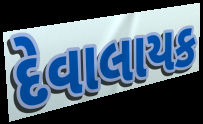
દેવાલાયક